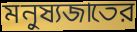
মনুষ্যজাতের